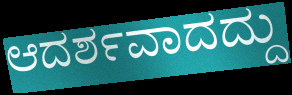
ಆದರ್ಶವಾದದ್ದು